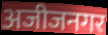
अजीजनगर